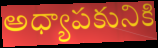
అధ్యాపకునికి